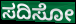
ಸದಿಸೋ